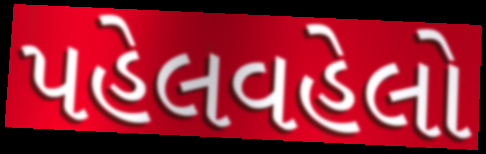
પહેલવહેલો